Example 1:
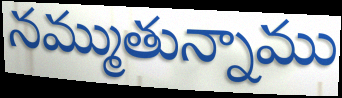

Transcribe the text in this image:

నమ్ముతున్నాము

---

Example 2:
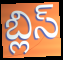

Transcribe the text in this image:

బ్లిస్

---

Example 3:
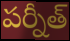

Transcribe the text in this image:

పర్నీత్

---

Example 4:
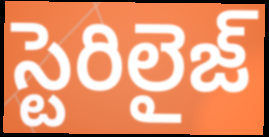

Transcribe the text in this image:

స్టెరిలైజ్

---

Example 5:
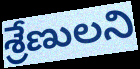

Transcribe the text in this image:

శ్రేణులని